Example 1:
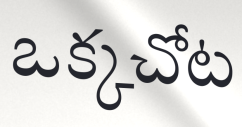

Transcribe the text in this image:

ఒక్కచోట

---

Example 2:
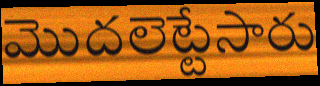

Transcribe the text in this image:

మొదలెట్టేసారు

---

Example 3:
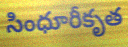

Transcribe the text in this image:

సింధూరీకృత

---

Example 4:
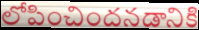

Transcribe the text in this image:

లోపించిందనడానికి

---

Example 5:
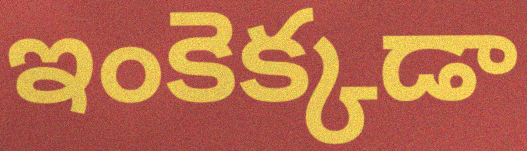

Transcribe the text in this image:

ఇంకెక్కడా